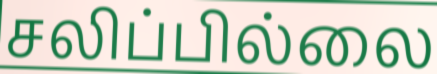
சலிப்பில்லை